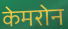
केमरोन